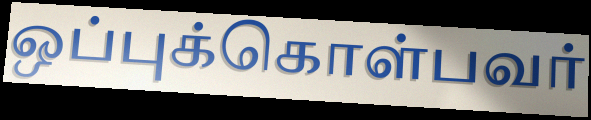
ஒப்புக்கொள்பவர்